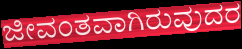
ಜೀವಂತವಾಗಿರುವುದರ